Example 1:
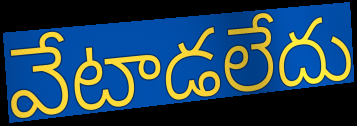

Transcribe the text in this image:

వేటాడలేదు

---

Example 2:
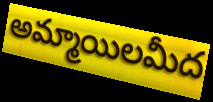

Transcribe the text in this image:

అమ్మాయిలమీద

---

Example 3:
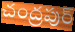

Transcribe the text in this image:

చంద్రపుర్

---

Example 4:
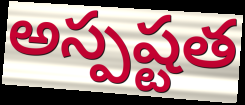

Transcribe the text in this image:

అస్పష్టత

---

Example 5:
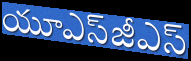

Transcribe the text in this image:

యూఎస్‌జీఎస్